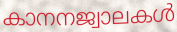
കാനനജ്വാലകൾ